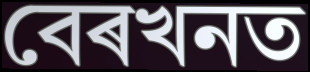
বেৰখনত